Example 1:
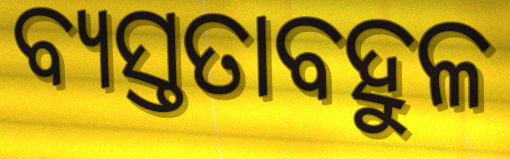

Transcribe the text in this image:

ବ୍ୟସ୍ତତାବହୁଳ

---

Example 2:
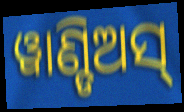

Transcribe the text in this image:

ୱାଣ୍ଡିଅସ୍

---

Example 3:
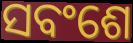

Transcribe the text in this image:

ସବଂଶେ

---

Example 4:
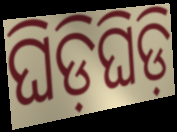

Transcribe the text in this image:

ଘିଡ଼ିଘିଡ଼ି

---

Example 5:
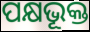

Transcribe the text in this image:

ପକ୍ଷଭୂକ୍ତ